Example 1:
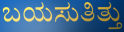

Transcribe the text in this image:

ಬಯಸುತಿತ್ತು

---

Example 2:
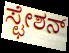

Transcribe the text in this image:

ಸ್ಟೇಶನ್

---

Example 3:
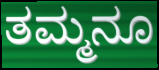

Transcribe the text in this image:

ತಮ್ಮನೂ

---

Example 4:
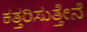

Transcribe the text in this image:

ಕತ್ತರಿಸುತ್ತೇನೆ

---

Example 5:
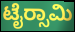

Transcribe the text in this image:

ಟೈರ‍್ಸಾಮಿ